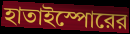
হাতাইস্পোরের